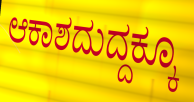
ಆಕಾಶದುದ್ದಕ್ಕೂ